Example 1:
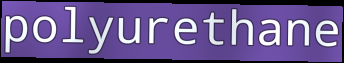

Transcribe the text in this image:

polyurethane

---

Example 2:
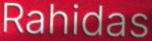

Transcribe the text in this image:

Rahidas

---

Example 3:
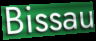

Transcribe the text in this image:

Bissau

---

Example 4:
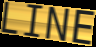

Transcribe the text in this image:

LINE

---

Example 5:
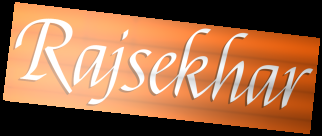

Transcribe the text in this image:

Rajsekhar